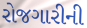
રોજગારીની